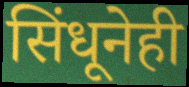
सिंधूनेही